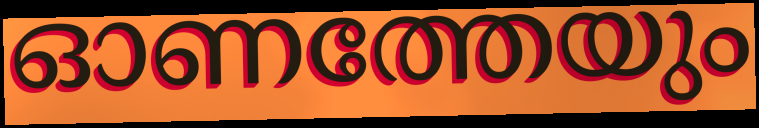
ഓണത്തേയും